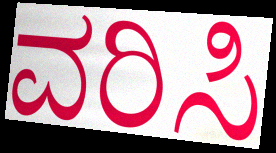
ವರಿಸಿ